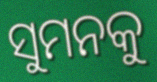
ସୁମନକୁ